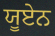
ਯੂਏਨ